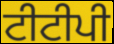
ਟੀਟੀਪੀ